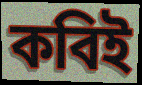
কবিই